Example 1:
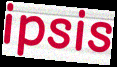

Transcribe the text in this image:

ipsis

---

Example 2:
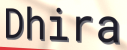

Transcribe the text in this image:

Dhira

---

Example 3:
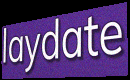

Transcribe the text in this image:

laydate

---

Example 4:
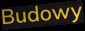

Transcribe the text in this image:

Budowy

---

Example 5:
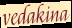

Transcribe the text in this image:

vedakina